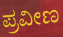
ಪ್ರವೀಣ